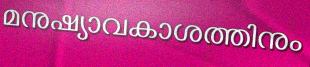
മനുഷ്യാവകാശത്തിനും